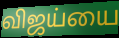
விஜய்யை